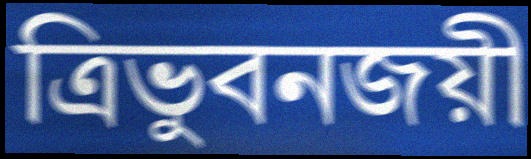
ত্রিভুবনজয়ী